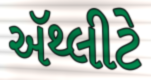
ઍથ્લીટે